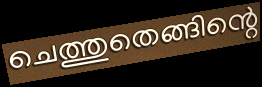
ചെത്തുതെങ്ങിന്റെ